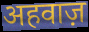
अहवाज़